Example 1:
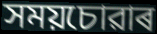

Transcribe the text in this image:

সময়চোৱাৰ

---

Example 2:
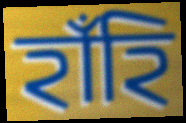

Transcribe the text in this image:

হাঁহি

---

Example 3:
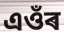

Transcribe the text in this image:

এওঁৰ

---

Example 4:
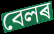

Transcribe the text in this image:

বেলৰ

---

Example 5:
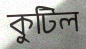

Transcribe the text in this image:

কুটিল